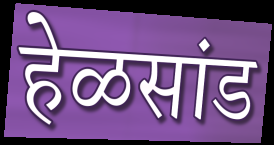
हेळसांड